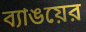
ব্যাঙয়ের